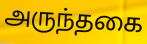
அருந்தகை